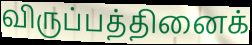
விருப்பத்தினைக்